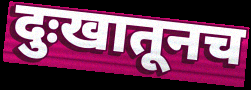
दुःखातूनच